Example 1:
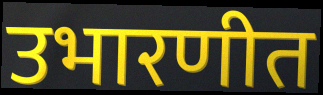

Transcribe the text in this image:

उभारणीत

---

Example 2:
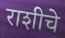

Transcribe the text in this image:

राशीचे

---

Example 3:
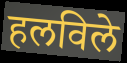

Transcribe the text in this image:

हलविले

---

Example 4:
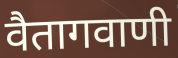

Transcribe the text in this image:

वैतागवाणी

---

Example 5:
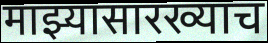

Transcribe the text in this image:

माझ्यासारख्याच